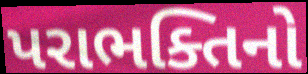
પરાભક્તિનો